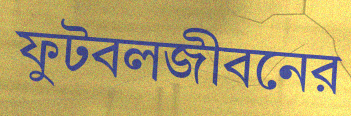
ফুটবলজীবনের